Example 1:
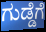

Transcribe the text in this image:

ಗುಡ್ಡೆಗೆ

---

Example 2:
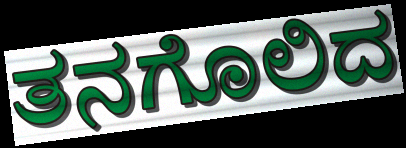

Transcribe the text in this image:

ತನಗೊಲಿದ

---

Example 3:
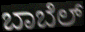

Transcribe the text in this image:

ಬಾಬೆಲ್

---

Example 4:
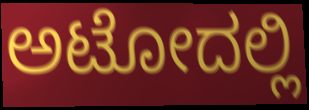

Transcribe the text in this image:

ಅಟೋದಲ್ಲಿ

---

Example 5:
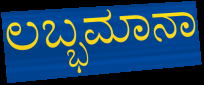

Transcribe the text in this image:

ಲಬ್ಭಮಾನಾ